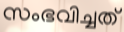
സംഭവിച്ചത്